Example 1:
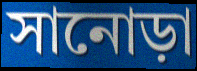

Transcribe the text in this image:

সানোড়া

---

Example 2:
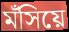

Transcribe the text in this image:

মঁসিয়ে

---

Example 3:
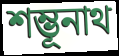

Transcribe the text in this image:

শম্ভূনাথ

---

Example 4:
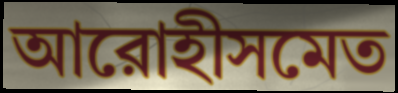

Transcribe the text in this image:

আরোহীসমেত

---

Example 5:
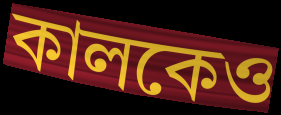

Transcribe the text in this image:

কালকেও